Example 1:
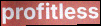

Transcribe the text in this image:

profitless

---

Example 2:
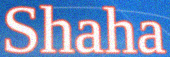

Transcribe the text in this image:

Shaha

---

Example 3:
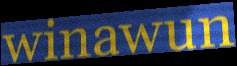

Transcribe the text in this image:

winawun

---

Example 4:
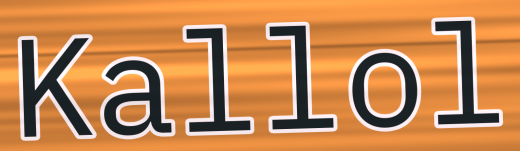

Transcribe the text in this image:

Kallol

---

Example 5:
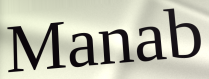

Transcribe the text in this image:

Manab